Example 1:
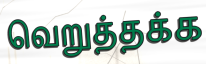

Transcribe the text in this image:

வெறுத்தக்க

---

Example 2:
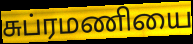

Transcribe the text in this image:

சுப்ரமணியை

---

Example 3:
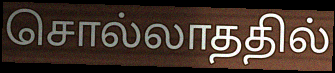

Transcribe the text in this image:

சொல்லாததில்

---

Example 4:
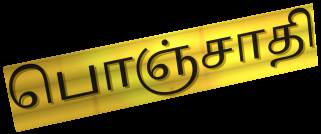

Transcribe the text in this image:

பொஞ்சாதி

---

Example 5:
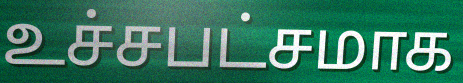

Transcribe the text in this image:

உச்சபட்சமாக